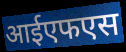
आईएफएस